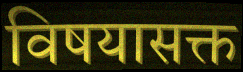
विषयासक्त